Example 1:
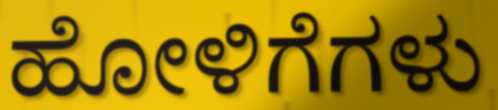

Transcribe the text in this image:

ಹೋಳಿಗೆಗಳು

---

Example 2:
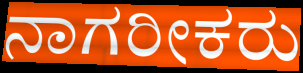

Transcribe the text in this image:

ನಾಗರೀಕರು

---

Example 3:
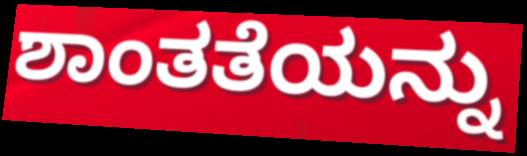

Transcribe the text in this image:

ಶಾಂತತೆಯನ್ನು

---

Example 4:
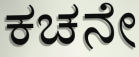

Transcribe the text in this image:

ಕಚನೇ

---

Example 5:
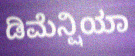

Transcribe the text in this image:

ಡಿಮೆನ್ಷಿಯಾ